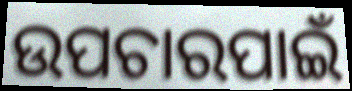
ଉପଚାରପାଇଁ